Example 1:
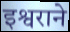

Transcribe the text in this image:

इश्वराने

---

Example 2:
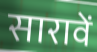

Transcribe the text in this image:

सारावें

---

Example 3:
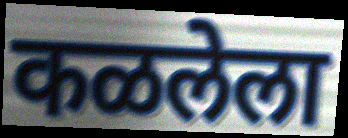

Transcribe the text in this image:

कळलेला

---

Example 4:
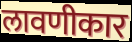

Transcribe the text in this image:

लावणीकार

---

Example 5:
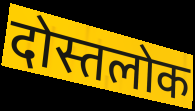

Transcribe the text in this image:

दोस्तलोक